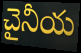
చైనీయ